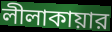
লীলাকায়ার